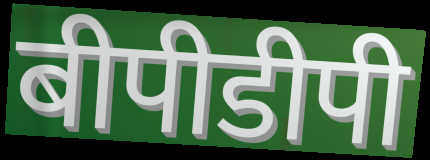
बीपीडीपी